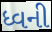
ધ્વની